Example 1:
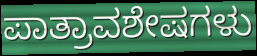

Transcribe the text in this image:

ಪಾತ್ರಾವಶೇಷಗಳು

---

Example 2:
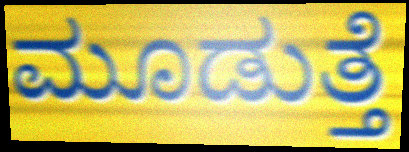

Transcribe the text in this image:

ಮೂಡುತ್ತೆ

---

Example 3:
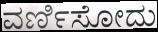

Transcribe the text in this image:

ವರ್ಣಿಸೋದು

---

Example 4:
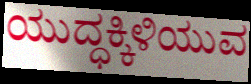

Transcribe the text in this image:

ಯುದ್ಧಕ್ಕಿಳಿಯುವ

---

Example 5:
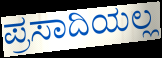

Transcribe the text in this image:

ಪ್ರಸಾದಿಯಲ್ಲ